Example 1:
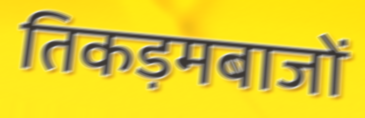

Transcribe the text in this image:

तिकड़मबाजों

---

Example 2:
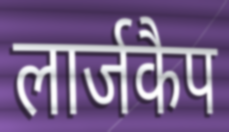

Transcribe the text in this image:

लार्जकैप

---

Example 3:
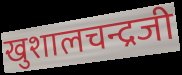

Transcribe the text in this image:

खुशालचन्द्रजी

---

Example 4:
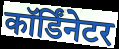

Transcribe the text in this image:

कॉर्डिंनेटर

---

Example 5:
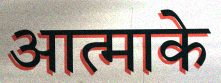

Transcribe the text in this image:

आत्माके